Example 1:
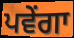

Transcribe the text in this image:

ਪਵੇਂਗਾ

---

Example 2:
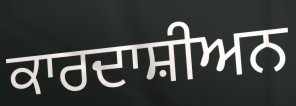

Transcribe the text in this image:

ਕਾਰਦਾਸ਼ੀਅਨ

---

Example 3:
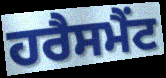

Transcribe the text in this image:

ਹਰੈਸਮੈਂਟ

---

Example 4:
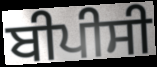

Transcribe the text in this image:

ਬੀਪੀਸੀ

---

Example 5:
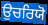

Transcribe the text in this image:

ਉਚਰਿਯੋ